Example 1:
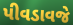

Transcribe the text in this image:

પીવડાવજે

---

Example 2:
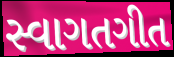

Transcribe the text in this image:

સ્વાગતગીત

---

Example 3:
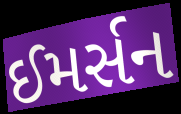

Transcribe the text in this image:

ઈમર્સન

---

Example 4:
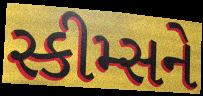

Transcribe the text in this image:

સ્કીમ્સને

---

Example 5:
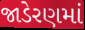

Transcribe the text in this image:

જાડેરણમાં